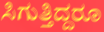
ಸಿಗುತ್ತಿದ್ದರೂ